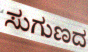
ಸುಗುಣದ